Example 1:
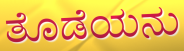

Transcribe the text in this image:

ತೊಡೆಯನು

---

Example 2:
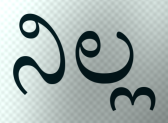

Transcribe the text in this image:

ನಿಲ್ಲ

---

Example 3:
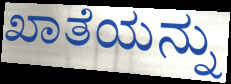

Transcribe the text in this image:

ಖಾತೆಯನ್ನು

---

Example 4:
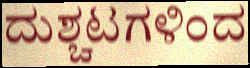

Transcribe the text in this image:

ದುಶ್ಚಟಗಳಿಂದ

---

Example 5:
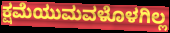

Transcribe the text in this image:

ಕ್ಷಮೆಯುಮವಳೊಳಗಿಲ್ಲ